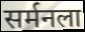
सर्मनला